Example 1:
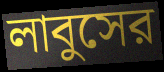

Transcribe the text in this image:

লাবুসের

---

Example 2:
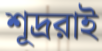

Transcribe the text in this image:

শূদ্ররাই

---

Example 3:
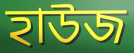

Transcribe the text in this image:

হাউজ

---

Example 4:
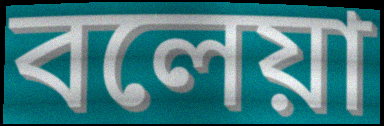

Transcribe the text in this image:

বলেয়া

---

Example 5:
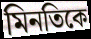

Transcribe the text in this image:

মিনতিকে